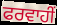
ਫਰਵਾਹੀਂ